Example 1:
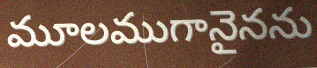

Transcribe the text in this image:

మూలముగానైనను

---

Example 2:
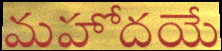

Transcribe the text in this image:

మహోదయే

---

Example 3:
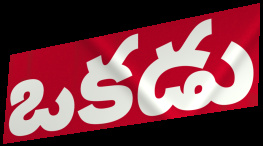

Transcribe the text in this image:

ఒకడు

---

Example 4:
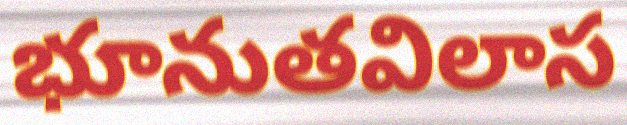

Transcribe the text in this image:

భూనుతవిలాస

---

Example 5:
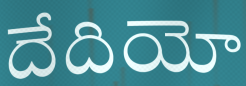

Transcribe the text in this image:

దేదియో